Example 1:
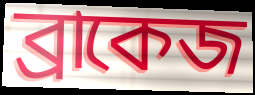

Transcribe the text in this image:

ব্রাকেজ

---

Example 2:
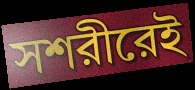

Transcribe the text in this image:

সশরীরেই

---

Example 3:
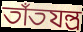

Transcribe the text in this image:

তাঁতযন্ত্র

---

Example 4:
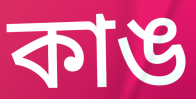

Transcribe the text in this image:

কাঙ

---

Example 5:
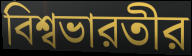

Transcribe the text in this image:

বিশ্বভারতীর